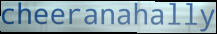
cheeranahally